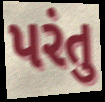
પરંતુ